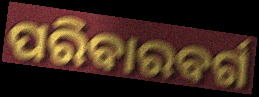
ପରିବାରବର୍ଗ